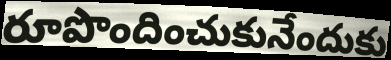
రూపొందించుకునేందుకు